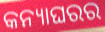
କନ୍ୟାଘରର